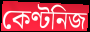
কেণ্টনিজ